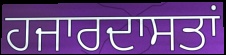
ਹਜਾਰਦਾਸਤਾਂ